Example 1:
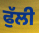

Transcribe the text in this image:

ਫੁੱਲੀ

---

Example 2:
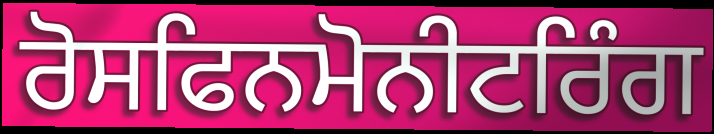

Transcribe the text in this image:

ਰੋਸਫਿਨਮੋਨੀਟਰਿੰਗ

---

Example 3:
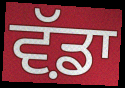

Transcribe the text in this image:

ਵ਼ੱਡਾ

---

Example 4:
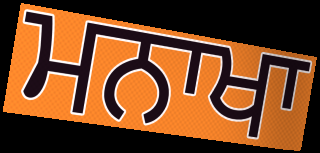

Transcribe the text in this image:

ਮਨਾਖਾ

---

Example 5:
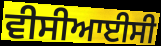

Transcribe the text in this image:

ਵੀਸੀਆਈਸੀ